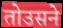
तोउसने